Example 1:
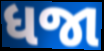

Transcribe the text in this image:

ધજા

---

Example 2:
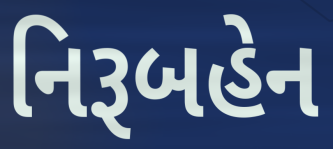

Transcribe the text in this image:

નિરૂબહેન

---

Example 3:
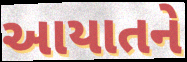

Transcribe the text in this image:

આયાતને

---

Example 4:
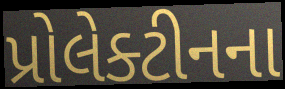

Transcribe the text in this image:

પ્રોલેક્ટીનના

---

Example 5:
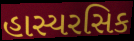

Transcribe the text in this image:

હાસ્યરસિક